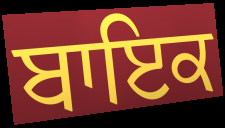
ਬਾਇਕ